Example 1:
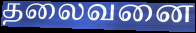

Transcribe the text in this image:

தலைவனை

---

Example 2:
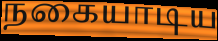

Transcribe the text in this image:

நகையாடிய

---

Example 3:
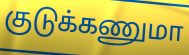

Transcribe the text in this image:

குடுக்கணுமா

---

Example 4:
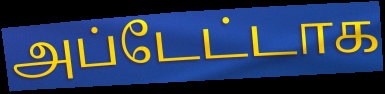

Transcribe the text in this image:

அப்டேட்டாக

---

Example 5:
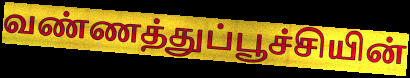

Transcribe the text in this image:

வண்ணத்துப்பூச்சியின்